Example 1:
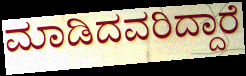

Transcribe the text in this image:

ಮಾಡಿದವರಿದ್ದಾರೆ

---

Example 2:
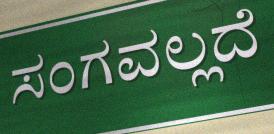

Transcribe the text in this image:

ಸಂಗವಲ್ಲದೆ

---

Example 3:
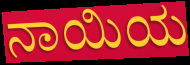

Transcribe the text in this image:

ನಾಯಿಯ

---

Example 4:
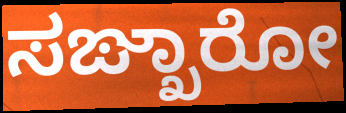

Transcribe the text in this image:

ಸಙ್ಖಾರೋ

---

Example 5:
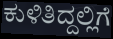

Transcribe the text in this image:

ಕುಳಿತಿದ್ದಲ್ಲಿಗೆ